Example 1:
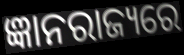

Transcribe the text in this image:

ଜ୍ଞାନରାଜ୍ୟରେ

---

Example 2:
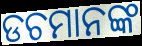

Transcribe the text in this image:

ଡଚମାନଙ୍କ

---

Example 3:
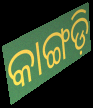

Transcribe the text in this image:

କାଙ୍ଗଡ଼ି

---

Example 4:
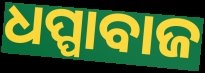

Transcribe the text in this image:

ଧପ୍ପାବାଜ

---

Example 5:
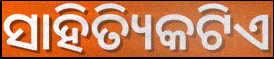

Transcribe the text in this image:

ସାହିତ୍ୟିକଟିଏ